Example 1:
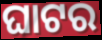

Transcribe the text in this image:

ଘାଟର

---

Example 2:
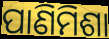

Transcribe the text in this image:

ପାଣିମିଶା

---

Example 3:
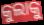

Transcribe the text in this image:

କୁଲାକୁ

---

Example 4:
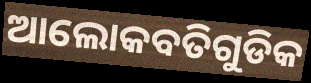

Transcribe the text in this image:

ଆଲୋକବତିଗୁଡିକ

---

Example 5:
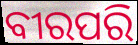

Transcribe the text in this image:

ବୀରପରି